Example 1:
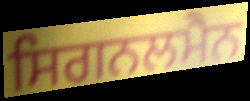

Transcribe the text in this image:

ਸਿਗਨਲਮੈਨ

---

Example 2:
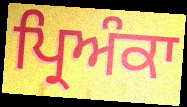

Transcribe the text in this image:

ਪ੍ਰਿਅੰਕਾ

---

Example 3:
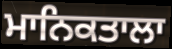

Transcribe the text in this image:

ਮਾਨਿਕਤਾਲਾ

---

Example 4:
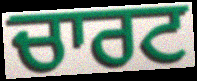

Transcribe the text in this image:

ਚਾਰਟ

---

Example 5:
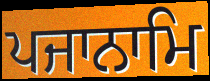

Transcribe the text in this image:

ਪਜਾਨਾਮਿ